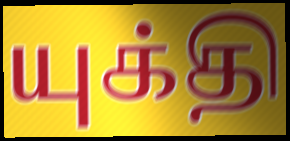
யுக்தி